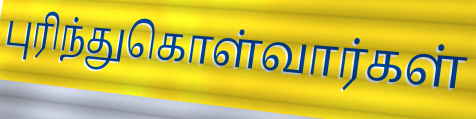
புரிந்துகொள்வார்கள்